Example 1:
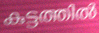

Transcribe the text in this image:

കുട്ടത്തിൽ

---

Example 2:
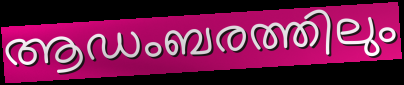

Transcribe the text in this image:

ആഡംബരത്തിലും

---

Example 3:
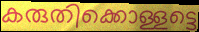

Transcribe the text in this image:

കരുതിക്കൊള്ളട്ടെ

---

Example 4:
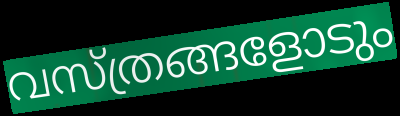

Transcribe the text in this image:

വസ്ത്രങ്ങളോടും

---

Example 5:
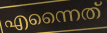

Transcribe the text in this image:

എന്നൈത്